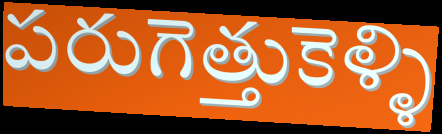
పరుగెత్తుకెళ్ళి